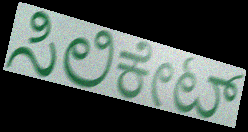
ಸಿಲಿಕೇಟ್